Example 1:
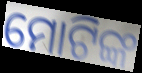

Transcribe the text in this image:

ମୋଟିଙ୍କ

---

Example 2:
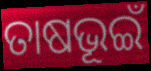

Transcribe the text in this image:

ତାଷଭୂଇଁ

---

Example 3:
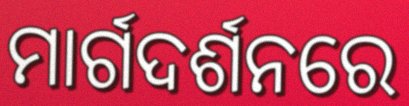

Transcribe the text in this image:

ମାର୍ଗଦର୍ଶନରେ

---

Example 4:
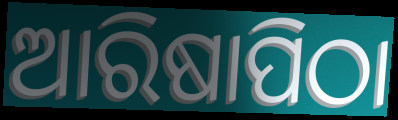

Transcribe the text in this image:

ଆରିଷାପିଠା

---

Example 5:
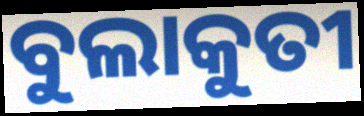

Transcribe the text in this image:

ବୁଲାକୁତୀ